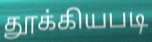
தூக்கியபடி